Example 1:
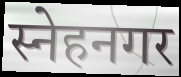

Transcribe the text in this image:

स्नेहनगर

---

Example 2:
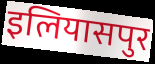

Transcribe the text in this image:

इलियासपुर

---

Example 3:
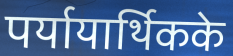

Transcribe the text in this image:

पर्यायार्थिकके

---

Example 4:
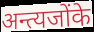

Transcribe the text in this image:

अन्त्यजोंके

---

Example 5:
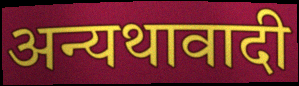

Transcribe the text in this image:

अन्यथावादी